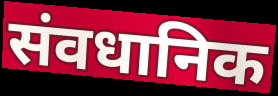
संवधानिक